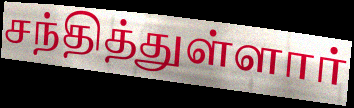
சந்தித்துள்ளார்